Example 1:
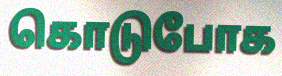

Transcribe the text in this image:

கொடுபோக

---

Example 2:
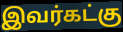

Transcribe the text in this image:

இவர்கட்கு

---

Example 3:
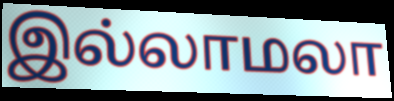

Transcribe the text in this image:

இல்லாமலா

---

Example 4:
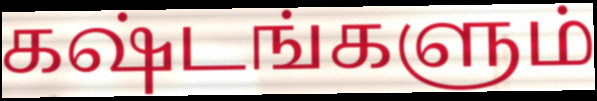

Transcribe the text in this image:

கஷ்டங்களும்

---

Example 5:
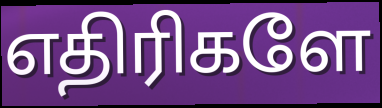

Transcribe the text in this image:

எதிரிகளே